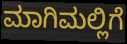
ಮಾಗಿಮಲ್ಲಿಗೆ